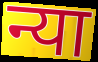
न्या